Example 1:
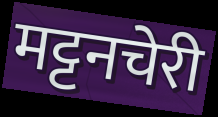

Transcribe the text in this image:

मट्टनचेरी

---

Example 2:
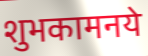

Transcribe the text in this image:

शुभकामनये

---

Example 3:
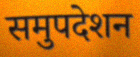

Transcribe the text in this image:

समुपदेशन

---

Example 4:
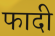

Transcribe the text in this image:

फादी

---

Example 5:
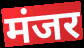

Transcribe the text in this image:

मंजर